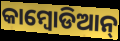
କାମ୍ବୋଡିଆନ୍